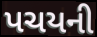
પચયની